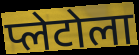
प्लेटोला